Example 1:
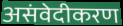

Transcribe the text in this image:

असंवेदीकरण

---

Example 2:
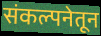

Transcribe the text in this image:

संकल्पनेतून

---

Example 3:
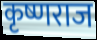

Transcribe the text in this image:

कृष्णराज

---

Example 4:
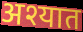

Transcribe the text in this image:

अश्यात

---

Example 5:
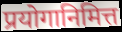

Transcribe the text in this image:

प्रयोगानिमित्त